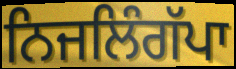
ਨਿਜਲਿੰਗੱਪਾ